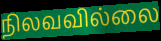
நிலவவில்லை